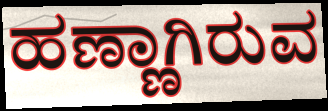
ಹಣ್ಣಾಗಿರುವ